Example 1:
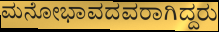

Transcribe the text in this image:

ಮನೋಭಾವದವರಾಗಿದ್ದರು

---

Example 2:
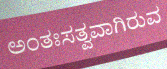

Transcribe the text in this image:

ಅಂತಃಸತ್ವವಾಗಿರುವ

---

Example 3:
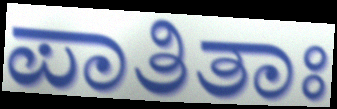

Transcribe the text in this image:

ಪಾತಿತಾಃ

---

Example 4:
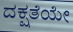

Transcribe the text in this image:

ದಕ್ಷತೆಯೇ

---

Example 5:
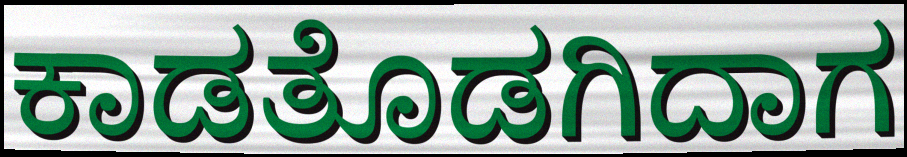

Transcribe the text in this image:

ಕಾಡತೊಡಗಿದಾಗ